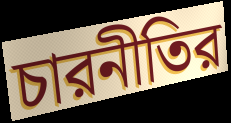
চারনীতির